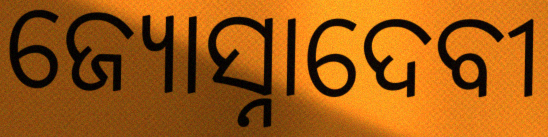
ଜ୍ୟୋସ୍ନାଦେବୀ